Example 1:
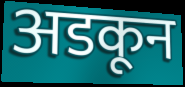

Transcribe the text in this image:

अडकून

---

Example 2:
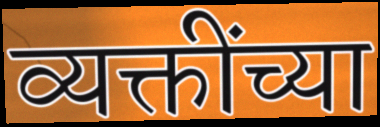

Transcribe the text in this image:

व्यक्तींच्या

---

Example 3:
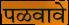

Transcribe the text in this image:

पळवावे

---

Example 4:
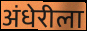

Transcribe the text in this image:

अंधेरीला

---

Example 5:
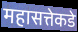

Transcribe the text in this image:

महासत्तेकडे